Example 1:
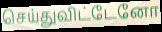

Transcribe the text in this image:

செய்துவிட்டேனோ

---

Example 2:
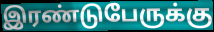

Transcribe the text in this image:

இரண்டுபேருக்கு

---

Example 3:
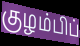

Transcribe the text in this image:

குழம்பிப்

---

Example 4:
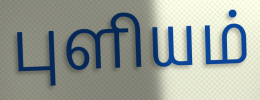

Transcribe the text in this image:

புளியம்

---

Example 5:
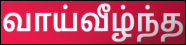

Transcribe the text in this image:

வாய்வீழ்ந்த